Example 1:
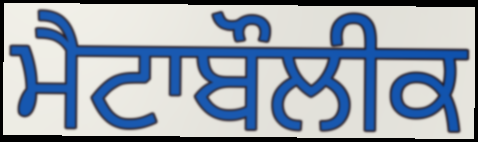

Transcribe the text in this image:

ਮੈਟਾਬੌਲੀਕ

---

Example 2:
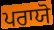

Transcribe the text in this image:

ਪਰਾਯੋ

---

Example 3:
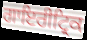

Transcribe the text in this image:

ਗਾਇਰੀਟ੍ਰਿਕ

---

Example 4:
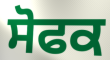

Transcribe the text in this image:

ਸੋਫਕ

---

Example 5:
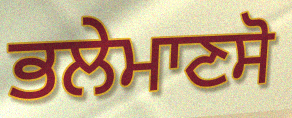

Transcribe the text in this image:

ਭਲੇਮਾਣਸੋ